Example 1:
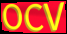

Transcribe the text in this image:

OCV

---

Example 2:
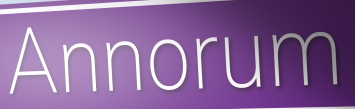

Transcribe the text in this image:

Annorum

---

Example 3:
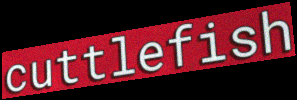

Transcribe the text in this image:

cuttlefish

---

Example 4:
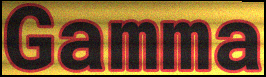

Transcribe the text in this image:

Gamma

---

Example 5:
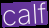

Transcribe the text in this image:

calf